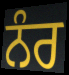
ਨੰਰ